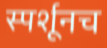
स्पर्शूनच